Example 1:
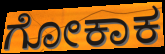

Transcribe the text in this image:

ಗೋಕಾಕ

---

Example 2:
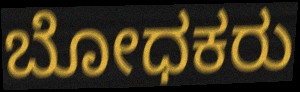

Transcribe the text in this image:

ಬೋಧಕರು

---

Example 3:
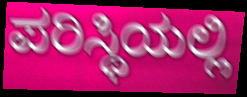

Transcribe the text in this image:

ಪರಿಸ್ಥಿಯಲ್ಲಿ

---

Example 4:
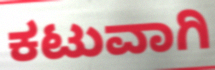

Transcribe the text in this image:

ಕಟುವಾಗಿ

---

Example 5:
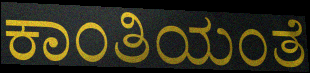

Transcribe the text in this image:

ಕಾಂತಿಯಂತೆ